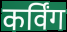
कर्विंग